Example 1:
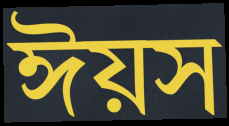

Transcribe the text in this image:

ঈয়স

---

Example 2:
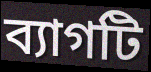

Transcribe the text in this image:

ব্যাগটি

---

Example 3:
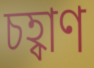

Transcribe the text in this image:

চহ্বাণ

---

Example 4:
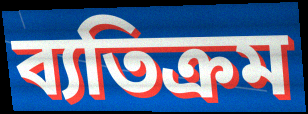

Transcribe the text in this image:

ব্যতিক্রম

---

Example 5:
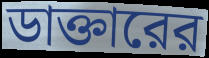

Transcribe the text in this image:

ডাক্তারের